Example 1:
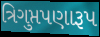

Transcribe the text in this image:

ત્રિગુપ્તપણારૂપ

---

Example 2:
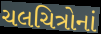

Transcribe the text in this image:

ચલચિત્રોનાં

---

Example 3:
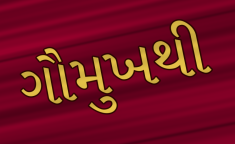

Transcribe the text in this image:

ગૌમુખથી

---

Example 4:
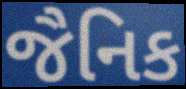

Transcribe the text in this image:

જૈનિક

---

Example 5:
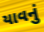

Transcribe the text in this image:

યાવનું